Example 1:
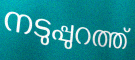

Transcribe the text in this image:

നടുപ്പുറത്ത്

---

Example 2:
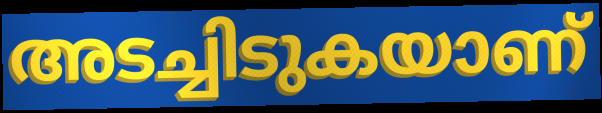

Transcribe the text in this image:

അടച്ചിടുകയാണ്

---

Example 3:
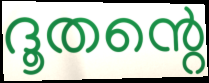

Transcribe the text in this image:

ദൂതന്റെ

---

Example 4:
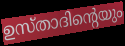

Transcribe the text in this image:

ഉസ്താദിന്റെയും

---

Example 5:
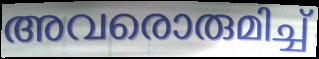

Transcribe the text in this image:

അവരൊരുമിച്ച്